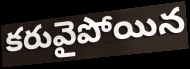
కరువైపోయిన